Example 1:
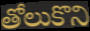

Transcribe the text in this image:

తోలుకొని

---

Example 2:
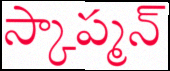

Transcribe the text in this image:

స్కాప్మన్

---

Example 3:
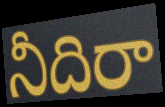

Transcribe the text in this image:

నీదిరా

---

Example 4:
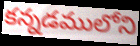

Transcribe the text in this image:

కన్నడములోని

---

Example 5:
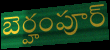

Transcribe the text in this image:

బెర్హంపూర్